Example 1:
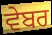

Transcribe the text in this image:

ਵੇਬਰ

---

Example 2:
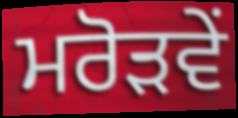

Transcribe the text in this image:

ਮਰੋੜਵੇਂ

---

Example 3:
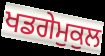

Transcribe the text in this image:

ਖਡਗੇਮੁਕੁਲ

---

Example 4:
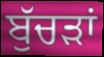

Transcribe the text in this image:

ਬੁੱਚੜਾਂ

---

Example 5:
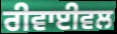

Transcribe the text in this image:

ਰੀਵਾਈਵਲ